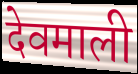
देवमाली